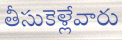
తీసుకెళ్లేవారు